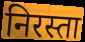
निरस्ता